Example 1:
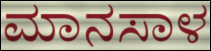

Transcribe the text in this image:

ಮಾನಸಾಳ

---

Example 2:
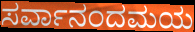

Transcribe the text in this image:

ಸರ್ವಾನಂದಮಯ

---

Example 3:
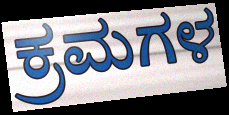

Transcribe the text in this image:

ಕ್ರಮಗಳ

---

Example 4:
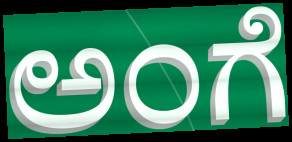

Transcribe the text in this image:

ಅಂಗೆ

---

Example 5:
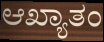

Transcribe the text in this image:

ಆಖ್ಯಾತಂ